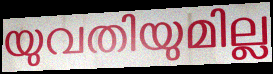
യുവതിയുമില്ല